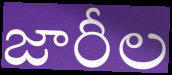
జారీల